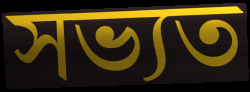
সভ্যত